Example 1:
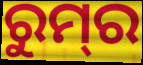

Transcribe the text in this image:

ରୁମ୍‌ର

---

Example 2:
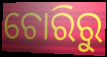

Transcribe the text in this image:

ଚୋରିରୁ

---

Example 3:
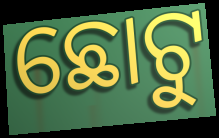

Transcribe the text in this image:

ଛୋଟୁ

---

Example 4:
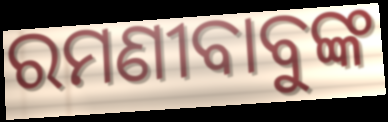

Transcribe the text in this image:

ରମଣୀବାବୁଙ୍କ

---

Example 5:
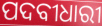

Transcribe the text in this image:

ପଦବୀଧାରୀ